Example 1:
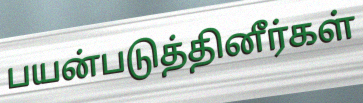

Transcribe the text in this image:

பயன்படுத்தினீர்கள்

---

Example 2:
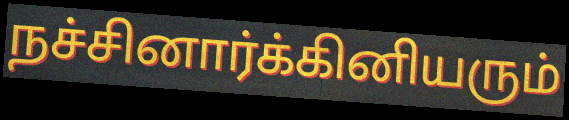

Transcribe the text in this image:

நச்சினார்க்கினியரும்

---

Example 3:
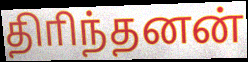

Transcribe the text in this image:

திரிந்தனன்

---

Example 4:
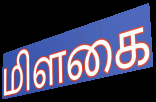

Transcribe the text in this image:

மிளகை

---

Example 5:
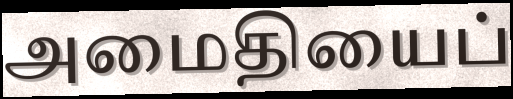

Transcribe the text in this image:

அமைதியைப்